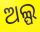
ଅଲ୍ପ